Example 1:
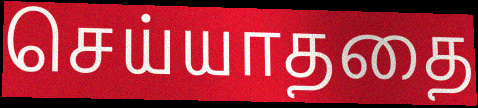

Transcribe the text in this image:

செய்யாததை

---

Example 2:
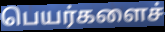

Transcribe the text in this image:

பெயர்களைச்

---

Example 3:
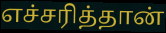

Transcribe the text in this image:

எச்சரித்தான்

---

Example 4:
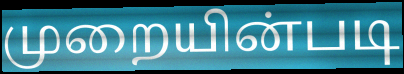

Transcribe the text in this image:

முறையின்படி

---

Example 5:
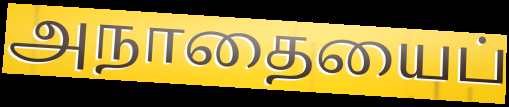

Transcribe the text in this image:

அநாதையைப்